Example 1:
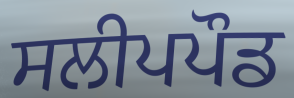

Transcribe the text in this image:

ਸਲੀਪਪੌਡ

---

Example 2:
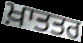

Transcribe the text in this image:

ਖ਼ਾਤਤਰ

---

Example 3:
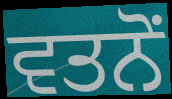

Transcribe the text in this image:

ਵਤਨੋਂ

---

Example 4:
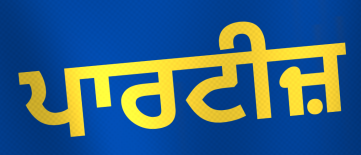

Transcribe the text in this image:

ਪਾਰਟੀਜ਼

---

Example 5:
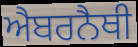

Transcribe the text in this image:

ਐਬਰਨੈਥੀ